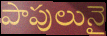
పాపులునై